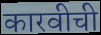
कारवीची